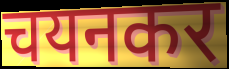
चयनकर